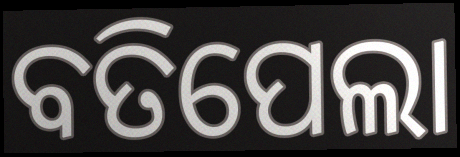
ବତିପେଲା